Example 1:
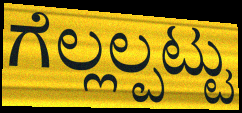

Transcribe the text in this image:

ಗೆಲ್ಲಲ್ಪಟ್ಟು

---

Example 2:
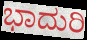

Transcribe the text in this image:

ಭಾದುರಿ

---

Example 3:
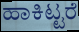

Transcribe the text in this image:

ಹಾಕಿಟ್ಟರೆ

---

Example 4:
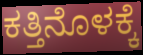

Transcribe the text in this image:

ಕತ್ತಿನೊಳಕ್ಕೆ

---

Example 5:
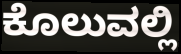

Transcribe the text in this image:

ಕೊಲುವಲ್ಲಿ